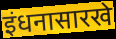
इंधनासारखे